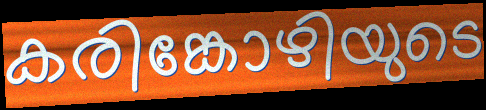
കരിങ്കോഴിയുടെ